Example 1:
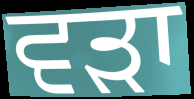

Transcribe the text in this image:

ਵੜਾ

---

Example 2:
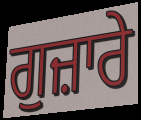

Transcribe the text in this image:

ਗੁਜ਼ਾਰੇ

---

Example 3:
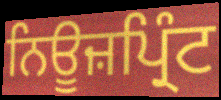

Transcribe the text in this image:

ਨਿਊਜ਼ਪ੍ਰਿੰਟ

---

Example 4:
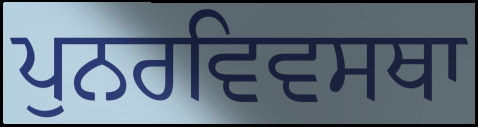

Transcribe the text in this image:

ਪੁਨਰਵਿਵਸਥਾ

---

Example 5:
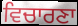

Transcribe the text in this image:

ਵਿਚਾਰਣਾ